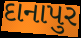
દાનાપુર